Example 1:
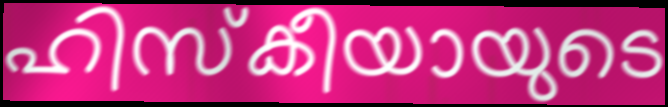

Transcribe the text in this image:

ഹിസ്കീയായുടെ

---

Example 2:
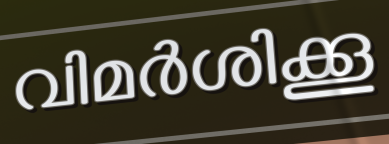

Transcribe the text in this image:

വിമർശിക്കൂ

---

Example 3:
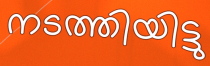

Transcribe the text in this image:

നടത്തിയിട്ടു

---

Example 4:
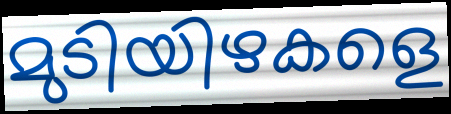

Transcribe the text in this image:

മുടിയിഴകളെ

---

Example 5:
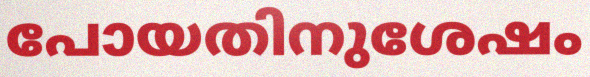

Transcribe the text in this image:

പോയതിനുശേഷം